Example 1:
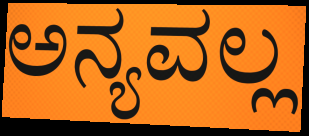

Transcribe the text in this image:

ಅನ್ಯವಲ್ಲ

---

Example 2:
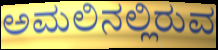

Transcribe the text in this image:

ಅಮಲಿನಲ್ಲಿರುವ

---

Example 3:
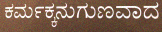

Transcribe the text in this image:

ಕರ್ಮಕ್ಕನುಗುಣವಾದ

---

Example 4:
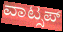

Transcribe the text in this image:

ವಾಟ್ಸಪ್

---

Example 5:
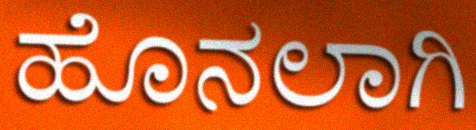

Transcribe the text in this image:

ಹೊನಲಾಗಿ